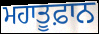
ਮਹਾਤੂਫ਼ਾਨ